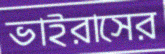
ভাইরাসের